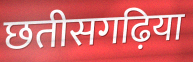
छतीसगढ़िया